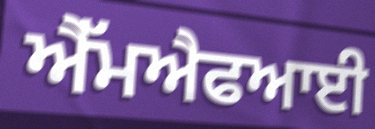
ਐੱਮਐਫਆਈ